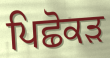
ਪਿਛੋਕੜ